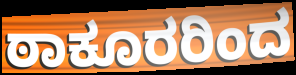
ಠಾಕೂರರಿಂದ